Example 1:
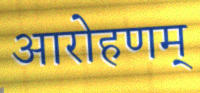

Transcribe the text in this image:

आरोहणम्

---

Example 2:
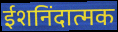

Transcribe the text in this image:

ईशनिंदात्मक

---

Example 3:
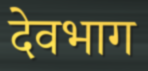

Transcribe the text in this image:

देवभाग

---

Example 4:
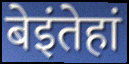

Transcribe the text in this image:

बेइंतेहां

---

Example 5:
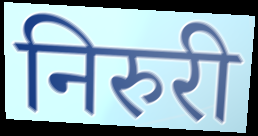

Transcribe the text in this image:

निरुरी